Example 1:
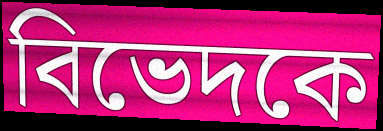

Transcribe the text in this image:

বিভেদকে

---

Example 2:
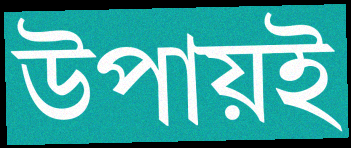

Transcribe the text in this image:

উপায়ই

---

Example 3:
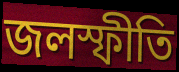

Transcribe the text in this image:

জলস্ফীতি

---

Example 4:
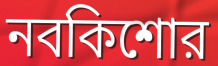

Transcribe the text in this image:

নবকিশোর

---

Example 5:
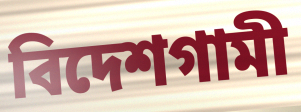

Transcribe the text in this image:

বিদেশগামী